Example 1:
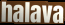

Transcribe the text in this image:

halava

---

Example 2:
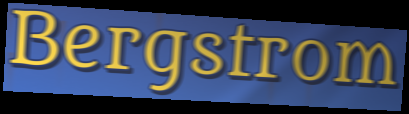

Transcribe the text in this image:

Bergstrom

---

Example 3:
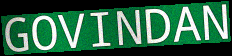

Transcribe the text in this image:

GOVINDAN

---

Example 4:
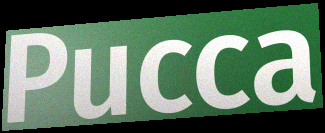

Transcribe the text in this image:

Pucca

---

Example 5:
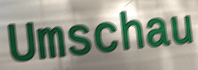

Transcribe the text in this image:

Umschau